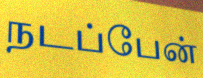
நடப்பேன்